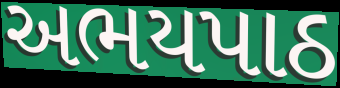
અભયપાઠ